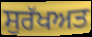
ਸੁਰੱਖਅਤ